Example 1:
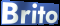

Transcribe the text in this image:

Brito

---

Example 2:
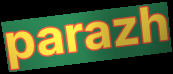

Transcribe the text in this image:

parazh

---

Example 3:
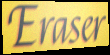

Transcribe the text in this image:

Eraser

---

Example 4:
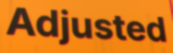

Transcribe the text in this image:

Adjusted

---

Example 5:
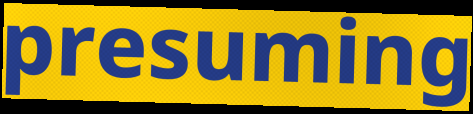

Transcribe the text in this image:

presuming